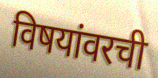
विषयांवरची